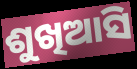
ଶୁଖିଆସି